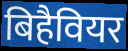
बिहैवियर